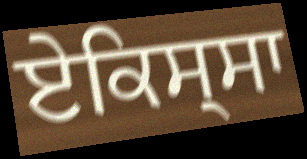
ਏਕਿਸ੍ਸਾ